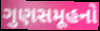
ગુણસમૂહનો